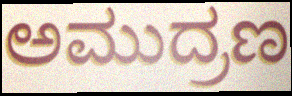
ಅಮುದ್ರಣ